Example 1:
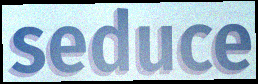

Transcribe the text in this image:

seduce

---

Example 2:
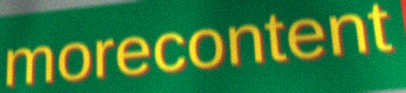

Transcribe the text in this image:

morecontent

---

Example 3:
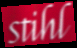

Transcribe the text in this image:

stihl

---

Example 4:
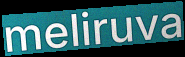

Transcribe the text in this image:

meliruva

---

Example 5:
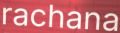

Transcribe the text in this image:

rachana